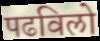
पढविलो